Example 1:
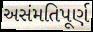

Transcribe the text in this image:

અસંમતિપૂર્ણ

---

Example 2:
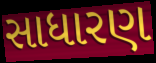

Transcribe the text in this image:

સાધારણ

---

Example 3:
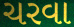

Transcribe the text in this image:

ચરવા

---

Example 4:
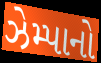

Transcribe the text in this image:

ઝેમ્પાનો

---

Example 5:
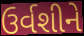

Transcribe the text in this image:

ઉર્વશીને